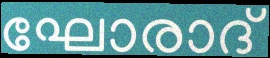
ഘോരാദ്